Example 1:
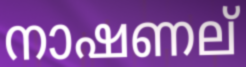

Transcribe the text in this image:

നാഷണല്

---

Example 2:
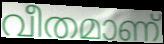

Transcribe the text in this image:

വീതമാണ്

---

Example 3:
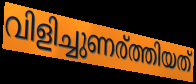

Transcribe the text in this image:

വിളിച്ചുണര്ത്തിയത്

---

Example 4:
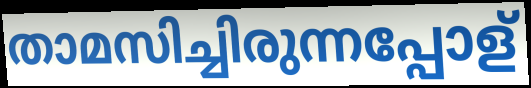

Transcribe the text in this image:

താമസിച്ചിരുന്നപ്പോള്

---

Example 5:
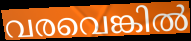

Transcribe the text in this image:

വരവെങ്കിൽ